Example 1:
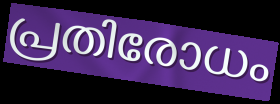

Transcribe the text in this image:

പ്രതിരോധം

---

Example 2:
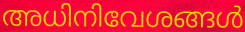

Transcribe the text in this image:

അധിനിവേശങ്ങൾ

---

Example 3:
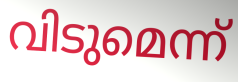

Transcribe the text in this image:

വിടുമെന്ന്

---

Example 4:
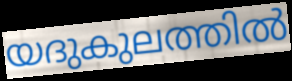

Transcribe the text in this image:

യദുകുലത്തിൽ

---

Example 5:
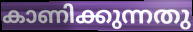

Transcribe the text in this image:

കാണിക്കുന്നതു